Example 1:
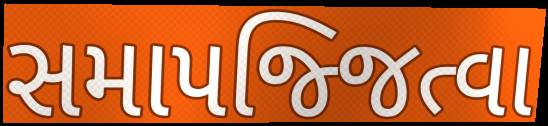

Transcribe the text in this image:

સમાપજ્જિત્વા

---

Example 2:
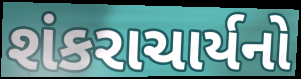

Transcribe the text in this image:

શંકરાચાર્યનો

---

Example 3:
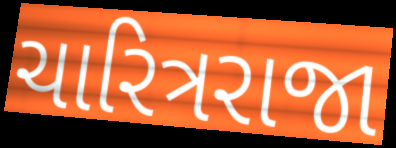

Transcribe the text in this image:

ચારિત્રરાજા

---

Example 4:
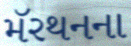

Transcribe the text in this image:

મૅરથનના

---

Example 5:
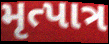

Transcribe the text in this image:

મૃત્પાત્ર